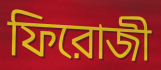
ফিরোজী